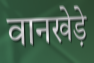
वानखेड़े